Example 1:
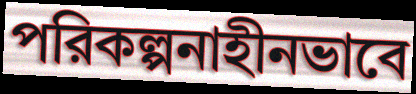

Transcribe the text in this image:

পরিকল্পনাহীনভাবে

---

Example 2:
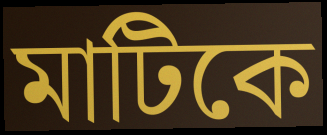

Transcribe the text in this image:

মাটিকে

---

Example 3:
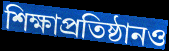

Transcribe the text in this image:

শিক্ষাপ্রতিষ্ঠানও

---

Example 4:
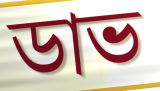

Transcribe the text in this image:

ডাভ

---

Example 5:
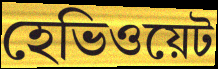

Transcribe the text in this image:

হেভিওয়েট